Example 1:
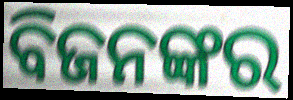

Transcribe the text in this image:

ବିଜନଙ୍କର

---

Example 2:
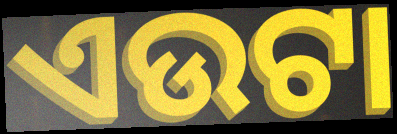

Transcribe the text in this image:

ଏଉଟା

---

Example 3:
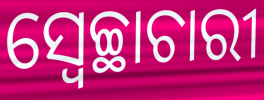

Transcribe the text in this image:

ସ୍ଵେଚ୍ଛାଚାରୀ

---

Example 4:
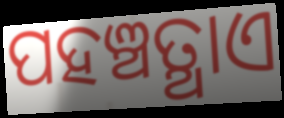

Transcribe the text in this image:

ପହଞ୍ଚତ୍ଥାଏ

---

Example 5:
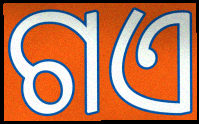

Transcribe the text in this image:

ଗଏ